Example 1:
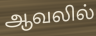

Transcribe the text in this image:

ஆவலில்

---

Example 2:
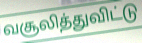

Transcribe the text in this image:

வசூலித்துவிட்டு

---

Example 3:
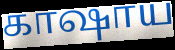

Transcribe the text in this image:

காஷாய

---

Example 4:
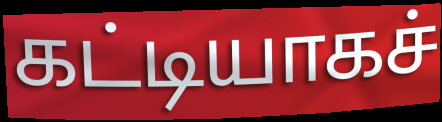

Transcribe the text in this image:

கட்டியாகச்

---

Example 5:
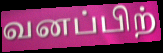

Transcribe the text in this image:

வனப்பிற்